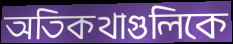
অতিকথাগুলিকে